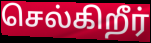
செல்கிறீர்